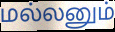
மல்லனும்